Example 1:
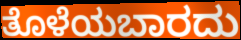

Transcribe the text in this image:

ತೊಳೆಯಬಾರದು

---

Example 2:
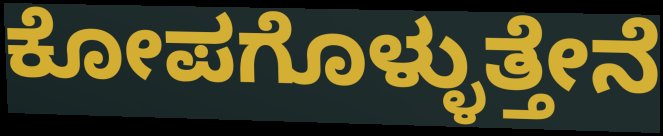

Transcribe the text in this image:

ಕೋಪಗೊಳ್ಳುತ್ತೇನೆ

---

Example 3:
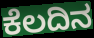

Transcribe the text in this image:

ಕೆಲದಿನ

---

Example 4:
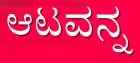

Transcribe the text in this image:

ಆಟವನ್ನ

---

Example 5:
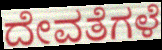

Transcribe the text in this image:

ದೇವತೆಗಳೆ